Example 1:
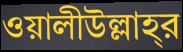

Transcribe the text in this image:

ওয়ালীউল্লাহ্‌র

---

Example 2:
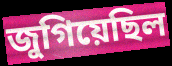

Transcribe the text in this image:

জুগিয়েছিল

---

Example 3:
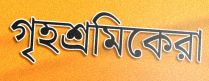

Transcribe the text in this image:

গৃহশ্রমিকেরা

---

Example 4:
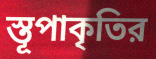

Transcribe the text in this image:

স্তূপাকৃতির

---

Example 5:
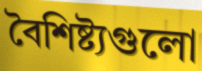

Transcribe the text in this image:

বৈশিষ্ট্যগুলো